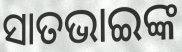
ସାତଭାଇଙ୍କ